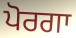
ਪੋਰਗਾ